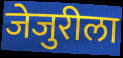
जेजुरीला